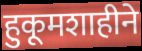
हुकूमशाहीने